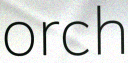
orch